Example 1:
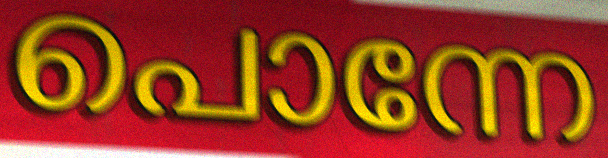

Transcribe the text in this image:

പൊന്നേ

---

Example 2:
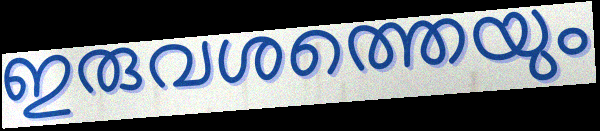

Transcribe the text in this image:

ഇരുവശത്തെയും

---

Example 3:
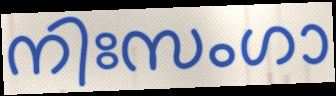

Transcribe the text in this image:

നിഃസംഗാ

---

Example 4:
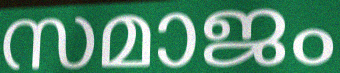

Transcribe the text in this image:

സമാജം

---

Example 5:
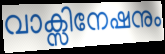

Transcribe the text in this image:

വാക്സിനേഷനും